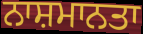
ਨਾਸ਼ਮਾਨਤਾ